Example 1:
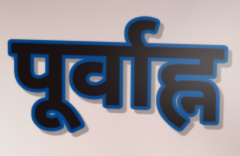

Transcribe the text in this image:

पूर्वाह्न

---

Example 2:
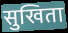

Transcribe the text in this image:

सुखिता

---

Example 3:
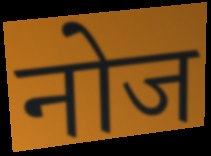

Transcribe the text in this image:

नोज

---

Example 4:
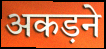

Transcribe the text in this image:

अकड़ने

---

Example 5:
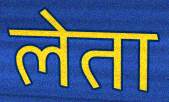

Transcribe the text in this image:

लेता